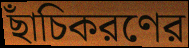
ছাঁচিকরণের